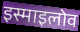
इस्माइलोव